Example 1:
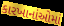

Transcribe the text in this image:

કારખાનાંઓમાં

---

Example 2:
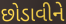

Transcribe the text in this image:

છોડાવીને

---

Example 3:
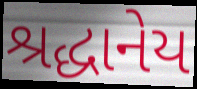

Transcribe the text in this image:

શ્રદ્ધાનેય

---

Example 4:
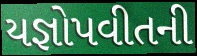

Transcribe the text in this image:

યજ્ઞોપવીતની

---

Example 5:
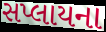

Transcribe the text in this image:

સપ્લાયના